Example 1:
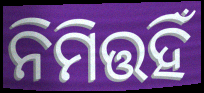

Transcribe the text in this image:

ନିମିତ୍ତହିଁ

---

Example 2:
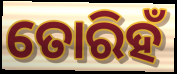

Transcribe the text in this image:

ତୋରିହଁ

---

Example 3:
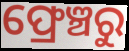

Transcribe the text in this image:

ଫ୍ରେଞ୍ଚରୁ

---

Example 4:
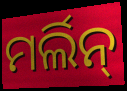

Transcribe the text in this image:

ମର୍ଲିନ୍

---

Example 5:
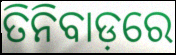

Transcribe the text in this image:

ତିନିବାଡ଼ରେ